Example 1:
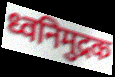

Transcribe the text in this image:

ध्वनिमुद्रक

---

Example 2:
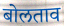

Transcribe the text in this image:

बोलताव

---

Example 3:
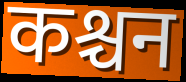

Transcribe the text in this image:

कश्चन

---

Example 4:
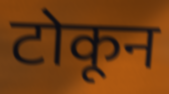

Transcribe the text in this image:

टोकून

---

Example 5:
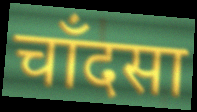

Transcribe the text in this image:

चाँदसा